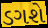
ડગશે